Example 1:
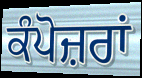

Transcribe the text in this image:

ਕੰਪੋਜ਼ਰਾਂ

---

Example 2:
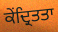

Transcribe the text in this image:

ਕੇਂਦ੍ਰਿਤਤਾ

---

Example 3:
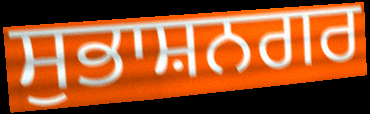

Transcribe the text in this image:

ਸੁਭਾਸ਼ਨਗਰ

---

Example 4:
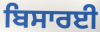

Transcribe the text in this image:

ਬਿਸਾਰਈ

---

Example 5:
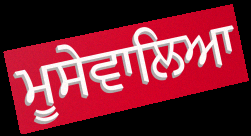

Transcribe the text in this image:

ਮੂਸੇਵਾਲਿਆ